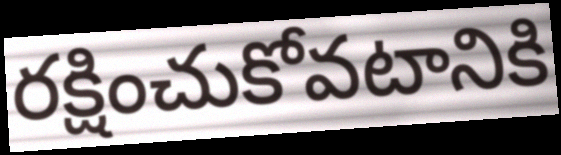
రక్షించుకోవటానికి